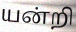
யன்றி